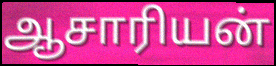
ஆசாரியன்